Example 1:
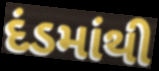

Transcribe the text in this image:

દંડમાંથી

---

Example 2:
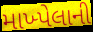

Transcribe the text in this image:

માખ્પેલાની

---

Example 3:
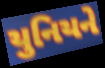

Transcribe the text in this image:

યુનિયને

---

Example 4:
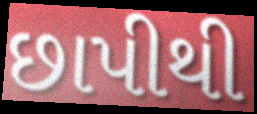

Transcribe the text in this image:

છાપીથી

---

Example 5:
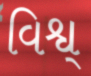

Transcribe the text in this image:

વિશ્વ્